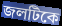
জলটিকে